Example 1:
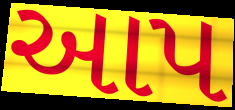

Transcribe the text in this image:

આપ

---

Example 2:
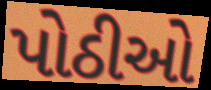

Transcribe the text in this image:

પોઠીઓ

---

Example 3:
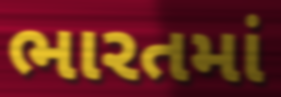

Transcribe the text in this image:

ભારતમાં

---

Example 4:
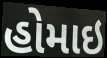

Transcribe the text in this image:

હોમાઇ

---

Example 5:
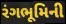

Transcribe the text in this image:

રંગભૂમિની